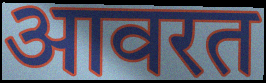
आवरत